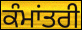
ਕੰਮਾਂਤਰੀ